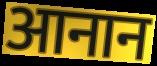
आनान